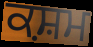
ਕ਼ਸ਼ਮ